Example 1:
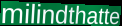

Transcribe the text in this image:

milindthatte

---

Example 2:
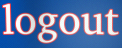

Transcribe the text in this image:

logout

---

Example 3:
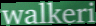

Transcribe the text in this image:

walkeri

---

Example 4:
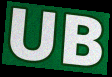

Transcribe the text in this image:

UB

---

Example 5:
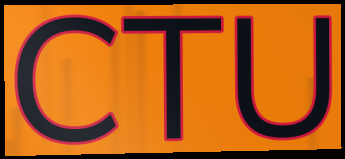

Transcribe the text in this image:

CTU